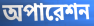
অপারেশন